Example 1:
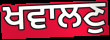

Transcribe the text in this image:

ਖਵਾਲਣੁ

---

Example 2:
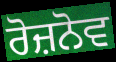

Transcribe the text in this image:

ਰੋਜ਼ਨੋਵ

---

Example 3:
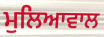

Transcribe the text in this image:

ਮੁਲਿਆਵਾਲ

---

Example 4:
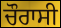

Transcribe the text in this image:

ਚੌਰਾਸੀ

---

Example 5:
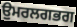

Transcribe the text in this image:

ਉੁਮਰਲਗਭਗ